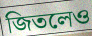
জিতলেও